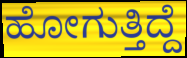
ಹೋಗುತ್ತಿದ್ದೆ